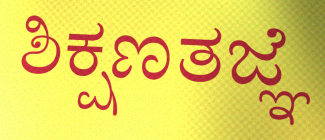
ಶಿಕ್ಷಣತಜ್ಞೆ